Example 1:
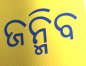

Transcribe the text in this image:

ଜନ୍ମିବ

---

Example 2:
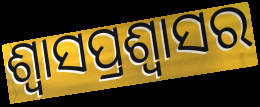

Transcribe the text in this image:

ଶ୍ଵାସପ୍ରଶ୍ଵାସର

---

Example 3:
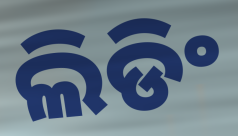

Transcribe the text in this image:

ଲିଡିଂ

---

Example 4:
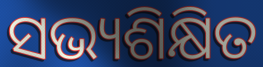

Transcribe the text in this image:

ସଭ୍ୟଶିକ୍ଷିତ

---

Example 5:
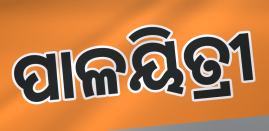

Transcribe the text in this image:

ପାଳୟିତ୍ରୀ